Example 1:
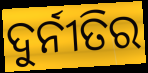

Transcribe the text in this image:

ଦୁର୍ନୀତିର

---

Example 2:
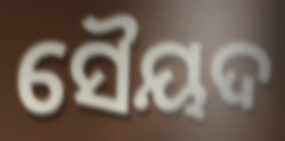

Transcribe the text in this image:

ସୈୟଦ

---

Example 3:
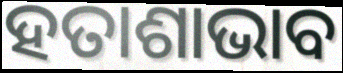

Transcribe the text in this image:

ହତାଶାଭାବ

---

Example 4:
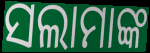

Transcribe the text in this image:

ସଲାମାଙ୍କ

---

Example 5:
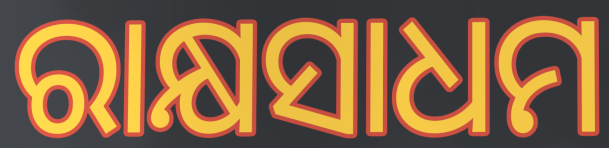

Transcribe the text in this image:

ରାକ୍ଷସାଧମ